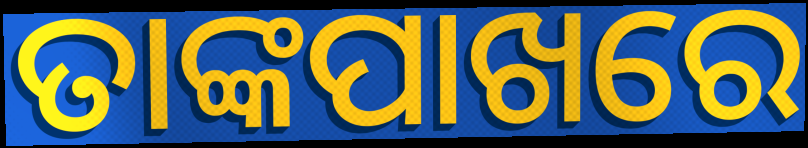
ତାଙ୍କପାଖରେ